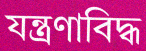
যন্ত্রণাবিদ্ধ